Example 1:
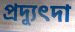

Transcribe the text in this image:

প্রদ্যুৎদা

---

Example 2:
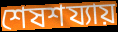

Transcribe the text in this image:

শেষশয্যায়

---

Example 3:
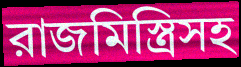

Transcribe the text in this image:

রাজমিস্ত্রিসহ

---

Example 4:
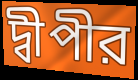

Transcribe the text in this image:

দ্বীপীর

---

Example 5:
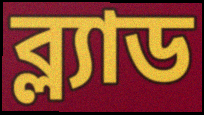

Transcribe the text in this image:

ব্ল্যাড